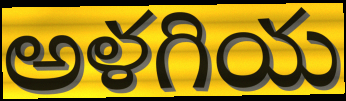
అళగియ